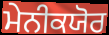
ਮੇਨੀਕਯੋਰ